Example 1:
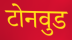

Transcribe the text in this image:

टोनवुड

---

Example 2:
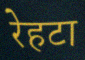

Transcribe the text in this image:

रेहटा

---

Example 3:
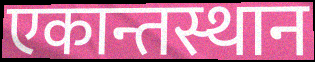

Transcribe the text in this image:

एकान्तस्थान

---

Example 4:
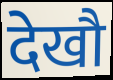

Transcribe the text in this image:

देखौ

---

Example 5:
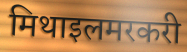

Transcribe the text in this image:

मिथाइलमरकरी